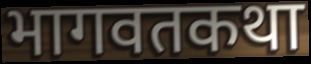
भागवतकथा